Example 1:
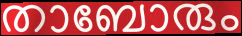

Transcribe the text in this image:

താബോരും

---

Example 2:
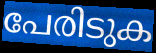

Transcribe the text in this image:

പേരിടുക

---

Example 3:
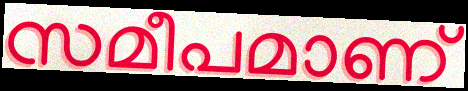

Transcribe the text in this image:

സമീപമാണ്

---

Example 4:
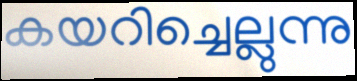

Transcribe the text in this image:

കയറിച്ചെല്ലുന്നു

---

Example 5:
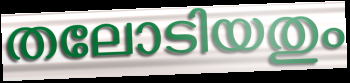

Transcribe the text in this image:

തലോടിയതും